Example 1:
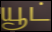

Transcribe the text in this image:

யூட்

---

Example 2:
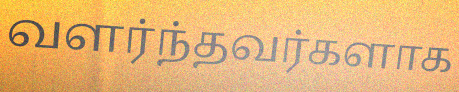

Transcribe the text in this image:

வளர்ந்தவர்களாக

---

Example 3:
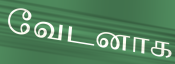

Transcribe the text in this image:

வேடனாக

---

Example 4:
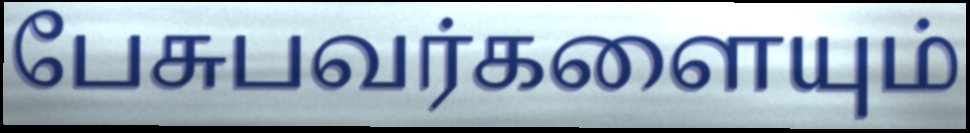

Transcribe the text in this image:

பேசுபவர்களையும்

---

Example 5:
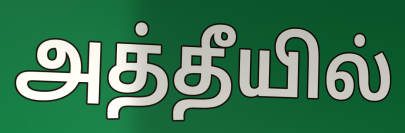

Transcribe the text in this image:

அத்தீயில்